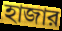
হাজার